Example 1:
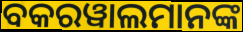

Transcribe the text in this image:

ବକରୱାଲମାନଙ୍କ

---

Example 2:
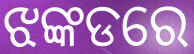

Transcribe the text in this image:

ଝଙ୍କଡରେ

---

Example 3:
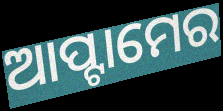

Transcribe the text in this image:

ଆପ୍ଟାମେର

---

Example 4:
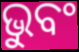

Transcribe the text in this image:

ଭୁବଂ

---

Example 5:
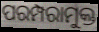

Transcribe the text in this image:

ପରମ୍ପରାମୁକ୍ତ